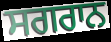
ਸਗਰਾਨ